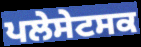
ਪਲੇਸੇਟਸਕ